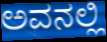
ಅವನಲ್ಲಿ